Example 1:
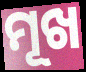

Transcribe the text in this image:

ମୂଖ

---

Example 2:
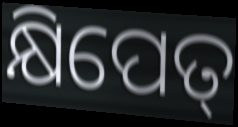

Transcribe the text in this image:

କ୍ଷିପେତ୍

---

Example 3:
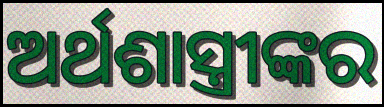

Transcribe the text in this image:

ଅର୍ଥଶାସ୍ତ୍ରୀଙ୍କର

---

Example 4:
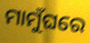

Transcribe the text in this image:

ମାମୁଁଘରେ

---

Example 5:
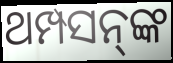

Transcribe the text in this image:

ଥମ୍ପସନ୍‌ଙ୍କ